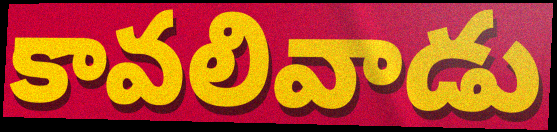
కావలివాడు